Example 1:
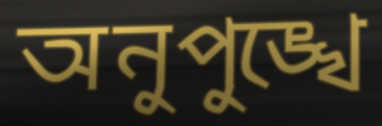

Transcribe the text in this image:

অনুপুঙ্খে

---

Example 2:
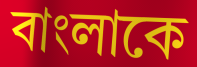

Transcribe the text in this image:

বাংলাকে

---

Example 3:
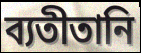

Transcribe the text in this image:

ব্যতীতানি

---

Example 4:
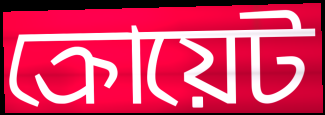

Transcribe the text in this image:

ক্রোয়েট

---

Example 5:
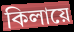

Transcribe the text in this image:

কিলায়ে